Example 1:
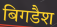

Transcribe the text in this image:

बिगडैश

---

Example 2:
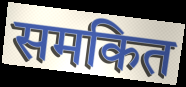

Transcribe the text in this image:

समकित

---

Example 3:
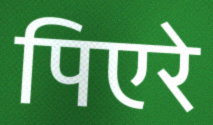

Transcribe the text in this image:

पिएरे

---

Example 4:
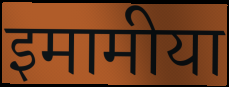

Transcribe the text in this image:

इमामीया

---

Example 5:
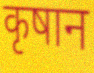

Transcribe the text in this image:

कृषान